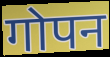
गोपन